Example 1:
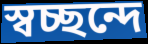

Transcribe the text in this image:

স্বচ্ছন্দে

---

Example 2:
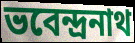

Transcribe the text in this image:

ভবেন্দ্ৰনাথ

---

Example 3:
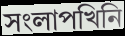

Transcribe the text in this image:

সংলাপখিনি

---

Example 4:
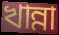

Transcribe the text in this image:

খান্না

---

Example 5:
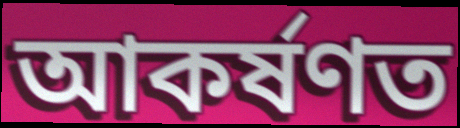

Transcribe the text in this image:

আকৰ্ষণত